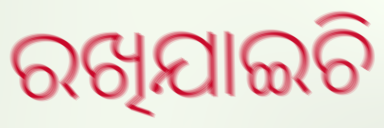
ରଖିଯାଇଚି